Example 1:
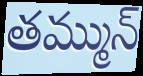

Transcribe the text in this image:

తమ్మున్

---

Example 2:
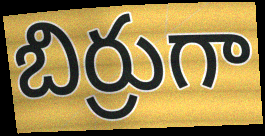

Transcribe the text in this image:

బిర్రుగా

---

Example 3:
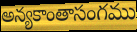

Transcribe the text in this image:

అన్యకాంతాసంగము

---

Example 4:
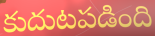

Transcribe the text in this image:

కుదుటపడింది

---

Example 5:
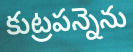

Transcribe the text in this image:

కుట్రపన్నెను